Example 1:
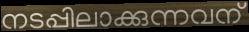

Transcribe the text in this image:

നടപ്പിലാക്കുന്നവന്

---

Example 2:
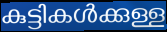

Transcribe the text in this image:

കുട്ടികൾക്കുള്ള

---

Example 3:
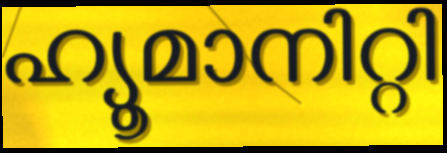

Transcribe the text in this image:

ഹ്യൂമാനിറ്റി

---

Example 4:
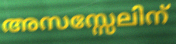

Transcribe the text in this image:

അസസ്സേലിന്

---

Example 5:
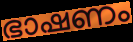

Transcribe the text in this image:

ഭാഷണം